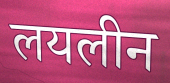
लयलीन